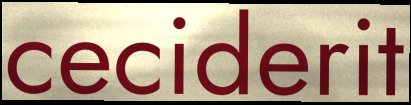
ceciderit